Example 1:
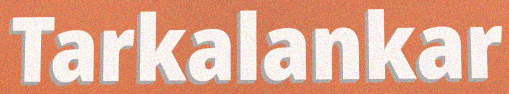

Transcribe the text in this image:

Tarkalankar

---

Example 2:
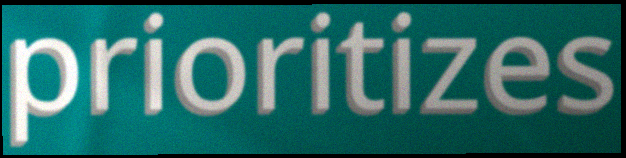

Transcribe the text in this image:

prioritizes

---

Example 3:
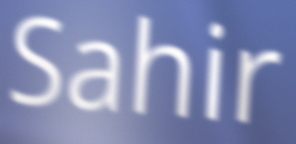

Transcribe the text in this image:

Sahir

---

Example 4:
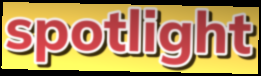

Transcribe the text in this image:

spotlight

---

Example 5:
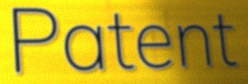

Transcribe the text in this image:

Patent